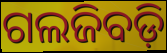
ଗଲଜିବଡ଼ି